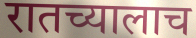
रातच्यालाच